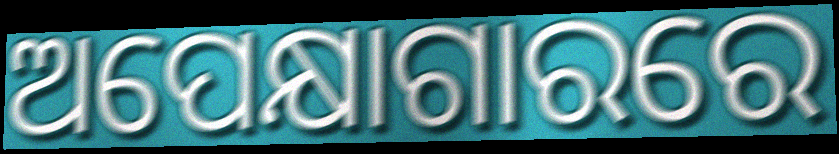
ଅପେକ୍ଷାଗାରରେ